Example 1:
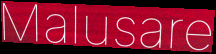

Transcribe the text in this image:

Malusare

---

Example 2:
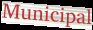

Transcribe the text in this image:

Municipal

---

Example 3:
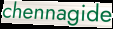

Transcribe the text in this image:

chennagide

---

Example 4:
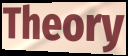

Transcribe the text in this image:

Theory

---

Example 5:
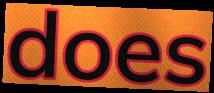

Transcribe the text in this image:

does